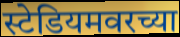
स्टेडियमवरच्या